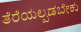
ತೆರೆಯಲ್ಪಡಬೇಕು